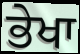
ਭੇਖਾ